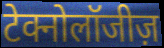
टेक्नोलॉजीज़